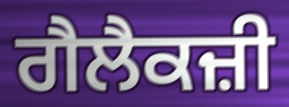
ਗੈਲੈਕਜ਼ੀ